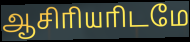
ஆசிரியரிடமே